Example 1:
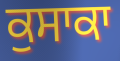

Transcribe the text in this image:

ਕੁਸਾਕਾ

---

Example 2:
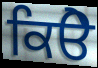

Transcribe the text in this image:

ਕਿੳੇ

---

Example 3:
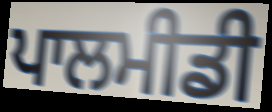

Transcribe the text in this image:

ਪਾਲਮੀਡੀ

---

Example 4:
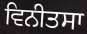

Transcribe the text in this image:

ਵਿਨੀਤਸਾ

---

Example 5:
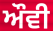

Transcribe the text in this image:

ਔਵੀ